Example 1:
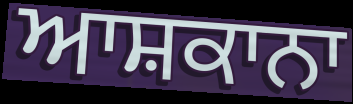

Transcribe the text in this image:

ਆਸ਼ਕਾਨਾ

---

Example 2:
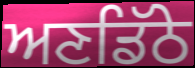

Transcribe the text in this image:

ਅਣਡਿੱਠੇ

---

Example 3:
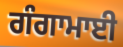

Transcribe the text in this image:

ਗੰਗਾਮਾਈ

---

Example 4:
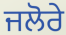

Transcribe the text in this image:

ਜਲੋਰੇ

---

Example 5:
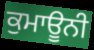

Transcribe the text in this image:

ਕੁਮਾਊਨੀ